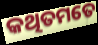
କଥିତମତେ